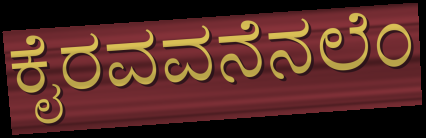
ಕೈರವವನೆನಲೆಂ